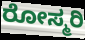
ರೋಸ್ಮರಿ